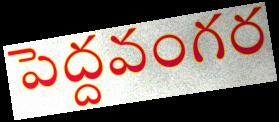
పెద్దవంగర